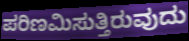
ಪರಿಣಮಿಸುತ್ತಿರುವುದು